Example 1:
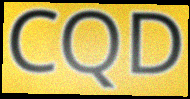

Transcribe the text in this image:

CQD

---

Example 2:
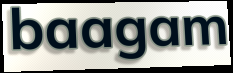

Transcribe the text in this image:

baagam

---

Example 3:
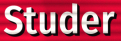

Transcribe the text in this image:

Studer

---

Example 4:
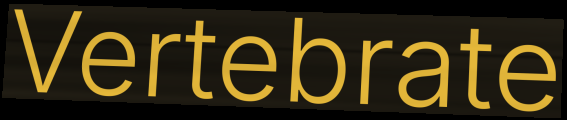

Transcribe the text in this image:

Vertebrate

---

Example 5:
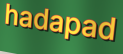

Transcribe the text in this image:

hadapad